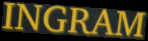
INGRAM